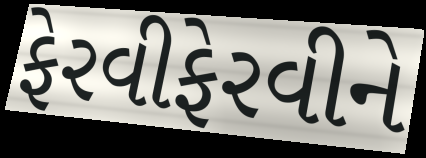
ફેરવીફેરવીને